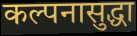
कल्पनासुद्धा